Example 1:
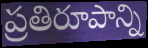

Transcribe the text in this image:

ప్రతిరూపాన్ని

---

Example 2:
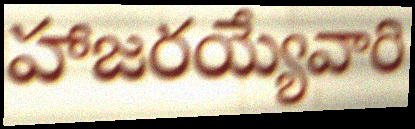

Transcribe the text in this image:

హాజరయ్యేవారి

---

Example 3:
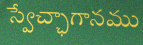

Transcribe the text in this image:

స్వేచ్ఛాగానము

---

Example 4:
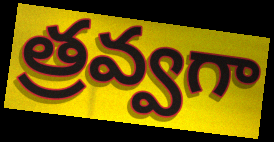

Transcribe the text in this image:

త్రవ్వగా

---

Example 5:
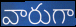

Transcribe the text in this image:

వారుగా